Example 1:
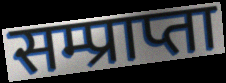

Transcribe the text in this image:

सम्प्राप्ता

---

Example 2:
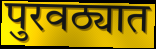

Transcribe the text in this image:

पुरवठ्यात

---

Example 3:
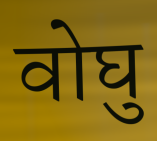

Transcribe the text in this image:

वोघु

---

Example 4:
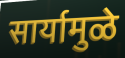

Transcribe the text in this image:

सार्यामुळे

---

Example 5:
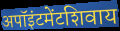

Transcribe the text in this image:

अपॉइंटमेंटशिवाय